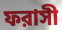
ফরাসী